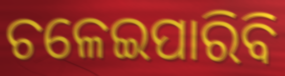
ଚଳେଇପାରିବି